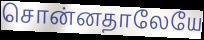
சொன்னதாலேயே